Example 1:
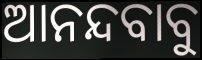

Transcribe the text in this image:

ଆନନ୍ଦବାବୁ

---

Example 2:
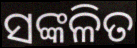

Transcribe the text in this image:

ସଙ୍କଳିତ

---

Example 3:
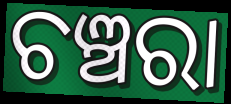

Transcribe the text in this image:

ଚଞ୍ଚରା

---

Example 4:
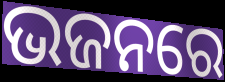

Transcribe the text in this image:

ଭଜନରେ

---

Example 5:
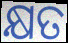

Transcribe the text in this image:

କ୍ଷତ